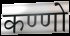
कण्णो